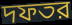
দফতর